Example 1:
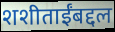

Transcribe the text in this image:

शशीताईंबद्दल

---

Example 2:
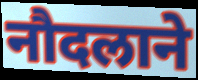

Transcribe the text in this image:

नौदलाने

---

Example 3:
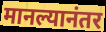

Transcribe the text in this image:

मानल्यानंतर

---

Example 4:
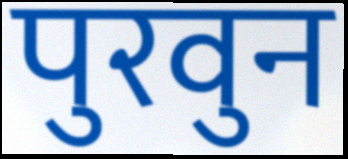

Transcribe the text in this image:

पुरवुन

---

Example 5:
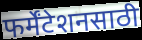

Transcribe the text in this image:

फर्मेंटेशनसाठी